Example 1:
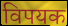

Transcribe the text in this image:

विपयक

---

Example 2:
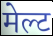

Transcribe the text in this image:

मेल्ट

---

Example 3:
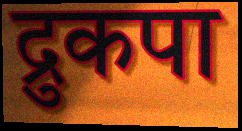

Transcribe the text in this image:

द्रुकपा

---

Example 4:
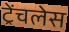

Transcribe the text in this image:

ट्रेंचलेस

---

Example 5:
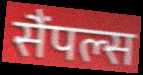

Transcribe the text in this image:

सैंपल्‍स